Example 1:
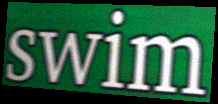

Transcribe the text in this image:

swim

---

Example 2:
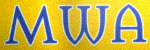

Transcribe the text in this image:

MWA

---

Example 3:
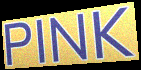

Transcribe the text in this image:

PINK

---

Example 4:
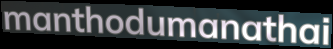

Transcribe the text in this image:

manthodumanathai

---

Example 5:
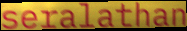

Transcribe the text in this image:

seralathan